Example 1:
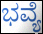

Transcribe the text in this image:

ಭವ್ಯೆ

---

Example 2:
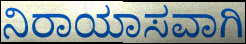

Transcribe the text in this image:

ನಿರಾಯಾಸವಾಗಿ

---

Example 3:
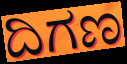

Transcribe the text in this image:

ದಿಗಣ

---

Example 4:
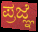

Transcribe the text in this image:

ಪ್ರಜ್ಞೆ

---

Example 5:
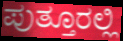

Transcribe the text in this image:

ಪುತ್ತೂರಲ್ಲಿ